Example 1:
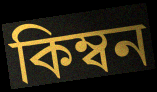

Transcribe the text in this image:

কিম্বন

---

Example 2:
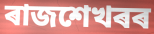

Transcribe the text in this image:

ৰাজশেখৰৰ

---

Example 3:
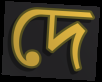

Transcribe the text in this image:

দে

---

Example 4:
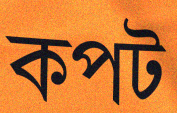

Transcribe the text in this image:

কপট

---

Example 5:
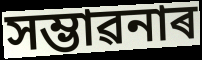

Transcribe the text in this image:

সম্ভাৱনাৰ